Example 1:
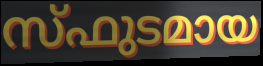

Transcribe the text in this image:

സ്ഫുടമായ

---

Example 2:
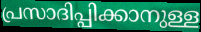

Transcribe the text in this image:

പ്രസാദിപ്പിക്കാനുള്ള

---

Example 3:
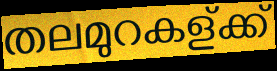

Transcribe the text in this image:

തലമുറകള്ക്ക്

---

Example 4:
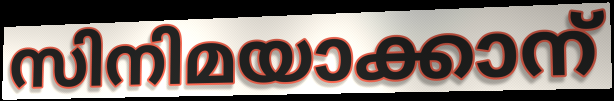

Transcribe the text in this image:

സിനിമയാക്കാന്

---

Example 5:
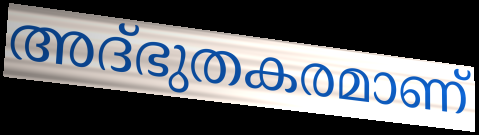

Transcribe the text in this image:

അദ്ഭുതകരമാണ്